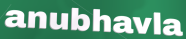
anubhavla